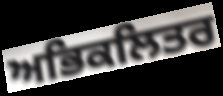
ਅਭਿਕਲਿਤਰ